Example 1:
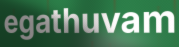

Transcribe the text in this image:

egathuvam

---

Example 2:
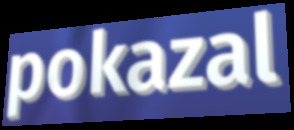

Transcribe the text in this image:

pokazal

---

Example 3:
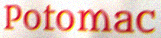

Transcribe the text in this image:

Potomac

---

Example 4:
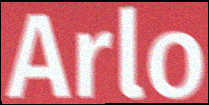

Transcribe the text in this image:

Arlo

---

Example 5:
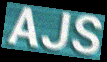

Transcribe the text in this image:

AJS